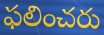
ఫలించరు